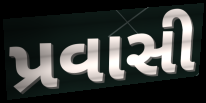
પ્રવાસી